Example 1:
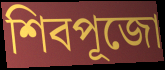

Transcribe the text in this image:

শিবপূজো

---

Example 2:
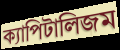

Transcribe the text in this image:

ক্যাপিটালিজম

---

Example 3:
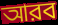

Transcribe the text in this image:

আরব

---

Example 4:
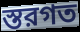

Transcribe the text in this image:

স্তরগত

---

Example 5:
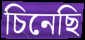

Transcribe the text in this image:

চিনেছি